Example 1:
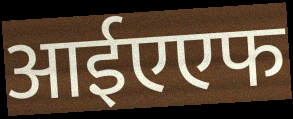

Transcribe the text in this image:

आईएएफ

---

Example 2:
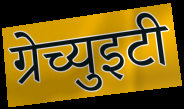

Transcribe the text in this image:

ग्रेच्युइटी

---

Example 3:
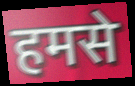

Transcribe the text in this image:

हमसे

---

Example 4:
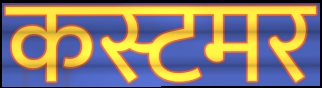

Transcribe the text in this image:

कस्टमर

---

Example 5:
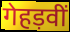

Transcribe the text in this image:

गेहड़वीं